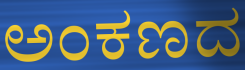
ಅಂಕಣದ